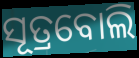
ସୂତ୍ରବୋଲି